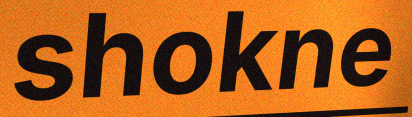
shokne